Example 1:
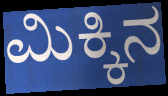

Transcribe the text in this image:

ಮಿಕ್ಕಿನ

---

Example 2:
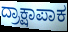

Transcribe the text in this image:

ದ್ರಾಕ್ಷಾಪಾಕ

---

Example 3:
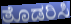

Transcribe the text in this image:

ತೊಡರಿಸಿ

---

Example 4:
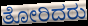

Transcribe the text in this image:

ತೋರಿದರು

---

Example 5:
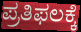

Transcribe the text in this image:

ಪ್ರತಿಫಲಕ್ಕೆ